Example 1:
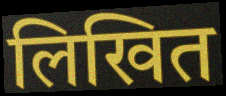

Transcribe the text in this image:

लिखित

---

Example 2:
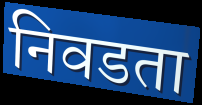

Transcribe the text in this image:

निवडता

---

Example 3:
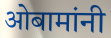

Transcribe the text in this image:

ओबामांनी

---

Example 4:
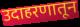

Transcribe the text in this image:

उदाहरणातून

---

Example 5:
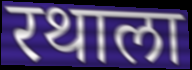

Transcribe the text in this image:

रथाला